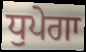
ਧੁਪੇਗਾ